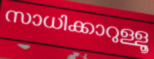
സാധിക്കാറുള്ളൂ